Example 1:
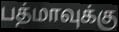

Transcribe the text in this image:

பத்மாவுக்கு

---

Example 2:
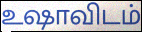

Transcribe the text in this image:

உஷாவிடம்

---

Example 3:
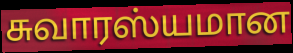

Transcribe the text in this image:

சுவாரஸ்யமான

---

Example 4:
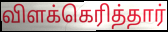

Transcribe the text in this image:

விளக்கெரித்தார்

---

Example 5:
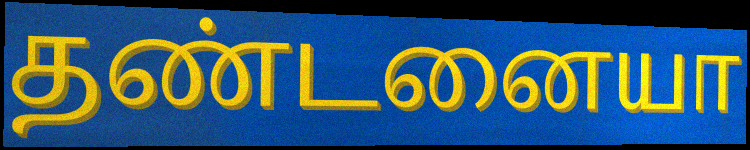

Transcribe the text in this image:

தண்டனையா